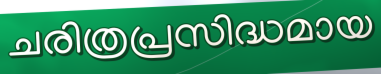
ചരിത്രപ്രസിദ്ധമായ